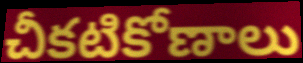
చీకటికోణాలు